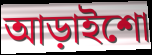
আড়াইশো